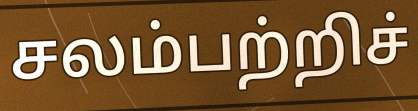
சலம்பற்றிச்